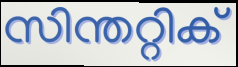
സിന്തറ്റിക്